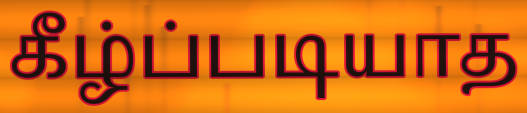
கீழ்ப்படியாத